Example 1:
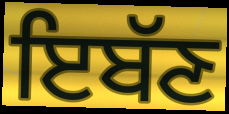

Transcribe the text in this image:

ਇਬੱਣ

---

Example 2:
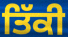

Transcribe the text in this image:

ਤਿੱਕੀ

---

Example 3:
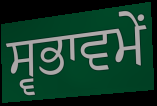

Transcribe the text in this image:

ਸ੍ਵਭਾਵਮੇਂ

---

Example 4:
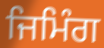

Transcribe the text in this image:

ਜਿਮਿੰਗ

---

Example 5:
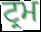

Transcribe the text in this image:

ਟ੍ਰਮ